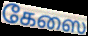
கேஸை